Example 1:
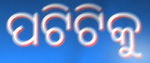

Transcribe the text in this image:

ପଟିଟିକୁ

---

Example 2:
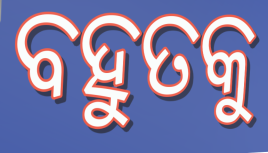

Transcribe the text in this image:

ବହୁତକୁ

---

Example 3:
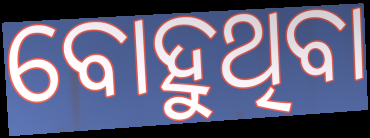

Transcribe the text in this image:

ବୋହୁଥିବା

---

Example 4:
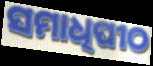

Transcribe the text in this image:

ସମାଧିପୀଠ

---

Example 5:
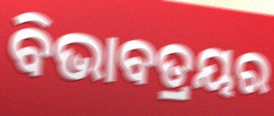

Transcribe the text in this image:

ବିଭାବତ୍ରୟର